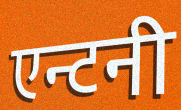
एन्टनी